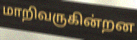
மாறிவருகின்றன